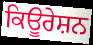
ਕਿਊਰੇਸ਼ਨ